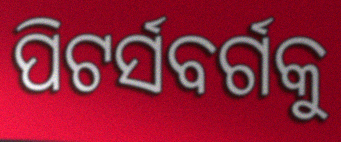
ପିଟର୍ସବର୍ଗକୁ